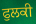
ਫੁਲਕੀ